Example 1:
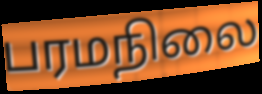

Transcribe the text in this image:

பரமநிலை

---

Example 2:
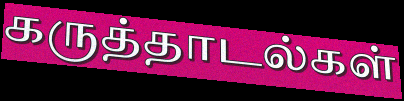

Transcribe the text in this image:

கருத்தாடல்கள்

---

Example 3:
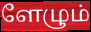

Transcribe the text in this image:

ளேழும்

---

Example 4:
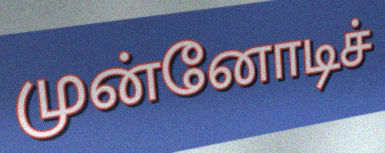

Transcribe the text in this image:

முன்னோடிச்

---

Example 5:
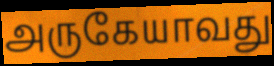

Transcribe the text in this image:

அருகேயாவது